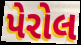
પેરોલ